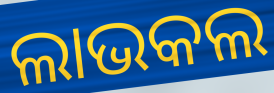
ଲାଭକଲ